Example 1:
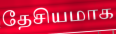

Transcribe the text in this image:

தேசியமாக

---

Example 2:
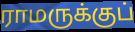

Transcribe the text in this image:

ராமருக்குப்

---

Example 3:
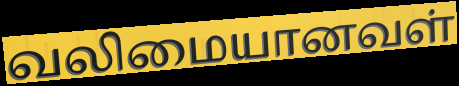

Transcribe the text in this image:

வலிமையானவள்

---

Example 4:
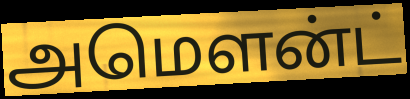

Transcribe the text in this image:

அமௌன்ட்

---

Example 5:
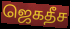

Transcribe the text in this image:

ஜெகதீச